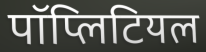
पॉप्लिटियल